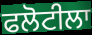
ਫਲੋਟੀਲਾ